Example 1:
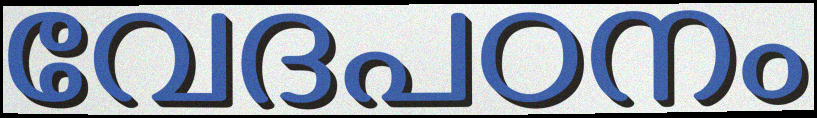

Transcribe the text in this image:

വേദപഠനം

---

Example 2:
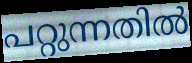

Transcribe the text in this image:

പറ്റുന്നതിൽ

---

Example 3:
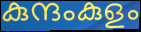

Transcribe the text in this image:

കുന്ദംകുളം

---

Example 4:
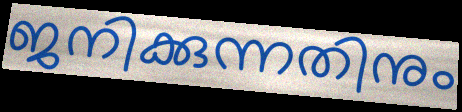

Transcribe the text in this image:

ജനിക്കുന്നതിനും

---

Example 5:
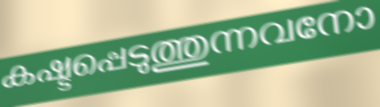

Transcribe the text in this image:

കഷ്ടപ്പെടുത്തുന്നവനോ